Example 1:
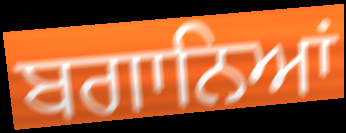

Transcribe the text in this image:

ਬਗਾਨਿਆਂ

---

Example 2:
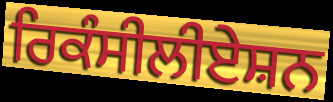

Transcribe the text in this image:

ਰਿਕੰਸੀਲੀਏਸ਼ਨ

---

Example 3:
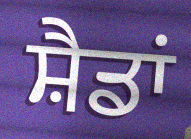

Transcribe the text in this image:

ਸ਼ੈਡਾਂ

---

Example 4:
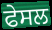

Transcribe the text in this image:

ਫੇਸਲ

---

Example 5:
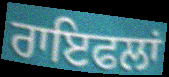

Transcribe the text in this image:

ਰਾਇਫਲਾਂ